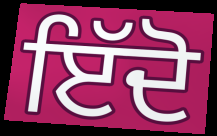
ਇੱਦੋ